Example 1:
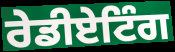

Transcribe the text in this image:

ਰੇਡੀਏਟਿੰਗ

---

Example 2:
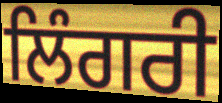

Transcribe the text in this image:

ਲਿੰਗਰੀ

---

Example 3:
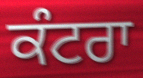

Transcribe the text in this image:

ਕੰਟਰਾ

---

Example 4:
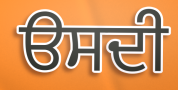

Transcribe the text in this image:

ੳਸਦੀ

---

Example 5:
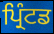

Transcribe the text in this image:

ਪ੍ਰਿੰਟਡ